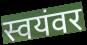
स्वयंवर